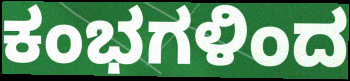
ಕಂಭಗಳಿಂದ